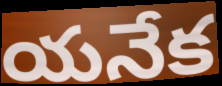
యనేక